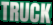
TRUCK